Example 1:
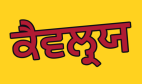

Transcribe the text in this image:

ਕੈਵਲ੍ਰਯ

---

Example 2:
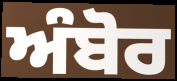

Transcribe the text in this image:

ਅੰਬੋਰ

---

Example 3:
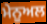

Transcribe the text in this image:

ਮੇਨੂਅਲ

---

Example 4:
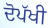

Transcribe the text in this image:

ਦੋਪੱਖੀ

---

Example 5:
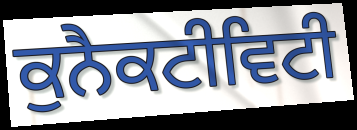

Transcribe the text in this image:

ਕੁਨੈਕਟੀਵਿਟੀ